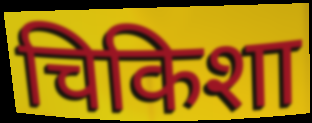
चिकिशा